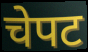
चेपट